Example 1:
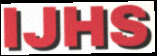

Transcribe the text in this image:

IJHS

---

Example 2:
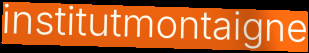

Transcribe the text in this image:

institutmontaigne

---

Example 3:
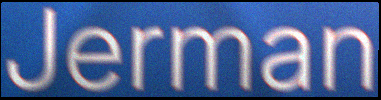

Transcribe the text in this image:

Jerman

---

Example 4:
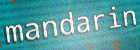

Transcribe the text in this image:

mandarin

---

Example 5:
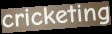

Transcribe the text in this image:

cricketing